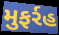
મુફર્રહ